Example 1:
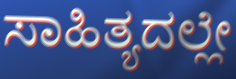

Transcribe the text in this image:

ಸಾಹಿತ್ಯದಲ್ಲೇ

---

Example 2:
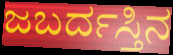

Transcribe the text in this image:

ಜಬರ್ದಸ್ತಿನ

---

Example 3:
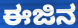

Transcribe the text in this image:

ಈಜಿನ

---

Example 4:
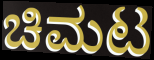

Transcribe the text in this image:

ಚಿಮಟ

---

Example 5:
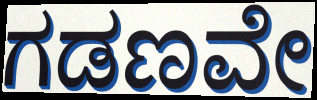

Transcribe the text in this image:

ಗಡಣವೇ